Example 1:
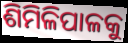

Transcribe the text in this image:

ଶିମିଳିପାଳକୁ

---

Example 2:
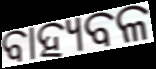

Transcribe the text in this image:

ବାହ୍ୟବଳ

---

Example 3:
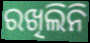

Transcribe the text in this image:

ରଖିଲିନି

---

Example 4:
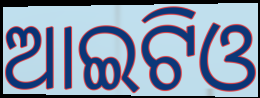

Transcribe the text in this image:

ଆଇଟିଓ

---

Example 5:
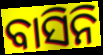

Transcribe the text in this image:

ବାସିନି